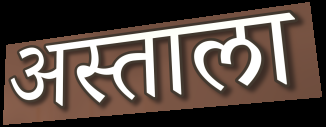
अस्ताला